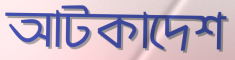
আটকাদেশ